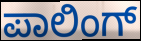
ಪಾಲಿಂಗ್